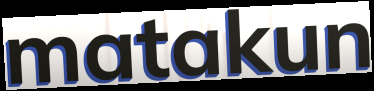
matakun